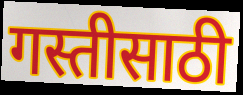
गस्तीसाठी